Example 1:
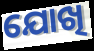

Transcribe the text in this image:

ଯୋଖି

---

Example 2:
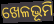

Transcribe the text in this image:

ଖେଳଭୂମି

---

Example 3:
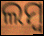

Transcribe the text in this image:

ଲମ୍ୱ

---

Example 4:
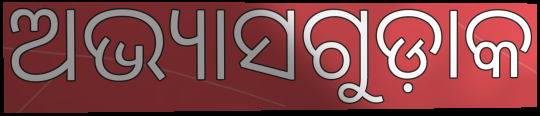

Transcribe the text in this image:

ଅଭ୍ୟାସଗୁଡ଼ାକ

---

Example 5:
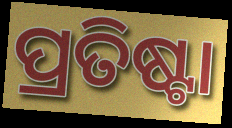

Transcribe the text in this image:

ପ୍ରତିଷ୍ଟା